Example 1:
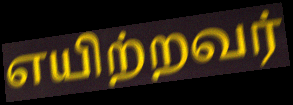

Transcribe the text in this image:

எயிற்றவர்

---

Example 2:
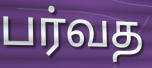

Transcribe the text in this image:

பர்வத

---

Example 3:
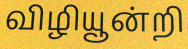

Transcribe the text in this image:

விழியூன்றி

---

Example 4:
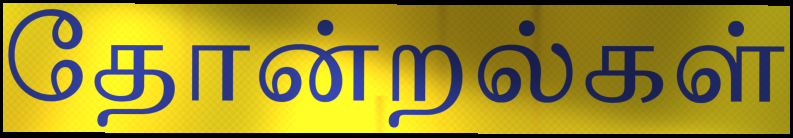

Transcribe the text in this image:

தோன்றல்கள்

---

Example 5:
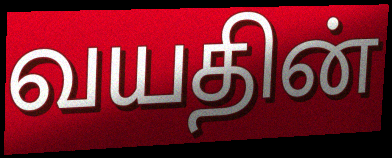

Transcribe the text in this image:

வயதின்